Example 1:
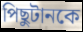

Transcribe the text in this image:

পিছুটানকে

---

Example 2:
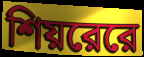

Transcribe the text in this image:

শিয়রেরে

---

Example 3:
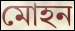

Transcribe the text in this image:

মোহন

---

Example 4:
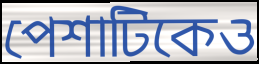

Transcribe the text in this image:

পেশাটিকেও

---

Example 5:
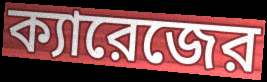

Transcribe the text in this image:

ক্যারেজের